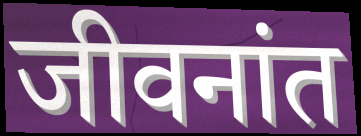
जीवनांत